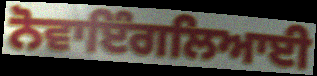
ਨੋਵਾਇੰਗਲਿਆਈ